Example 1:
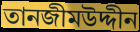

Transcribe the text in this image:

তানজীমউদ্দীন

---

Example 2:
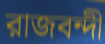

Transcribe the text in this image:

রাজবন্দী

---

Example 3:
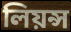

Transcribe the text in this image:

লিয়ন্স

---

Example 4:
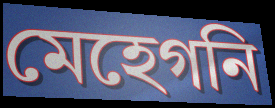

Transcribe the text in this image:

মেহেগনি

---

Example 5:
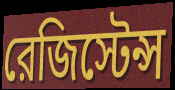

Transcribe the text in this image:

রেজিস্টেন্স